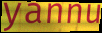
yannu